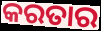
କରତାର